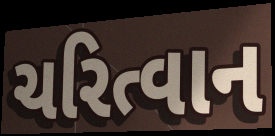
ચરિત્વાન